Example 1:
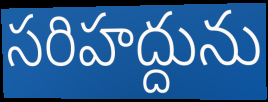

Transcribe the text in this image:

సరిహద్దును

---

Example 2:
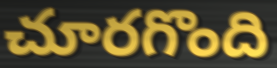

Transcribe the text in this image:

చూరగొంది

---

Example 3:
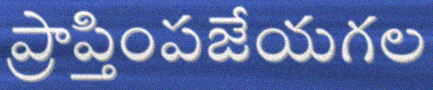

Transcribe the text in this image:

ప్రాప్తింపజేయగల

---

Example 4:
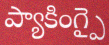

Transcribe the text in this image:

ప్యాకింగ్పై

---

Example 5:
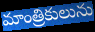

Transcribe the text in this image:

మాంత్రికులును